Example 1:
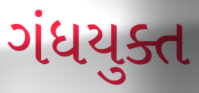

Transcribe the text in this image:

ગંધયુક્ત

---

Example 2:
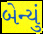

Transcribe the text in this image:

બેન્યું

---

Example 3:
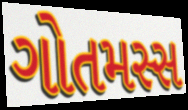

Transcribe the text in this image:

ગોતમસ્સ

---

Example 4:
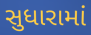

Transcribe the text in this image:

સુધારામાં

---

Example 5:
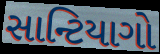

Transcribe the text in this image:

સાન્ટિયાગો